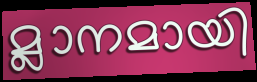
മ്ലാനമായി